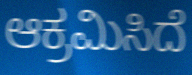
ಆಕ್ರಮಿಸಿದೆ